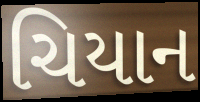
ચિયાન